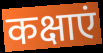
कक्षाएं